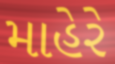
માહેરે